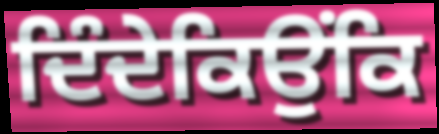
ਦਿੰਦੇਕਿਉਂਕਿ